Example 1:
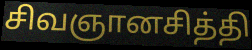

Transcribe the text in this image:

சிவஞானசித்தி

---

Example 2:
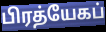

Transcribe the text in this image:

பிரத்யேகப்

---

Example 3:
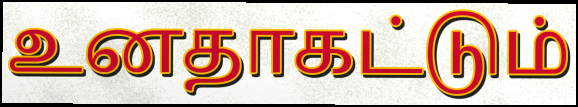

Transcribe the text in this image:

உனதாகட்டும்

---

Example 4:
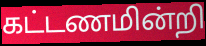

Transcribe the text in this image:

கட்டணமின்றி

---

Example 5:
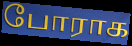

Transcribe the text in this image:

போராக